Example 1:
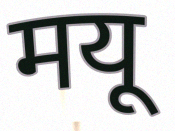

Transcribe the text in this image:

मयू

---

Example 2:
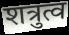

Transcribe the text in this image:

शत्रुत्व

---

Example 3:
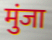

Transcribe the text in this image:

मुंजा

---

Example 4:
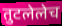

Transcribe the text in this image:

तुटलेलेच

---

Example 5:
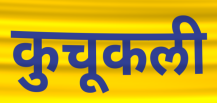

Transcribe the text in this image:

कुचूकली